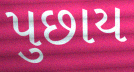
પુછાય